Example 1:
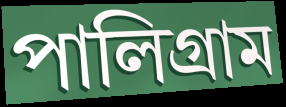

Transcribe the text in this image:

পালিগ্রাম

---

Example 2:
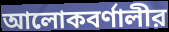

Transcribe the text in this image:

আলোকবর্ণালীর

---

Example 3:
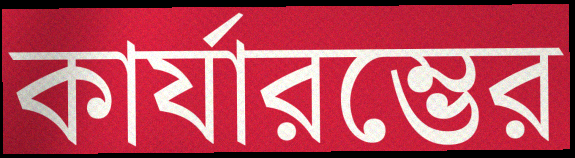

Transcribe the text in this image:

কার্যারম্ভের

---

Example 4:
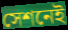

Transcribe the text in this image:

সেশনেই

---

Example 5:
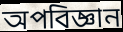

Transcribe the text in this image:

অপবিজ্ঞান